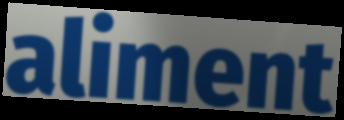
aliment